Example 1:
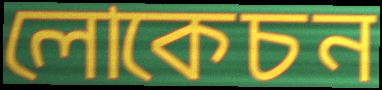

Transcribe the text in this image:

লোকেচন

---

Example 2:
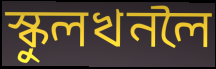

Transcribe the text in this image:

স্কুলখনলৈ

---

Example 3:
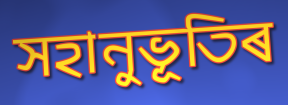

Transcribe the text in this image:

সহানুভূতিৰ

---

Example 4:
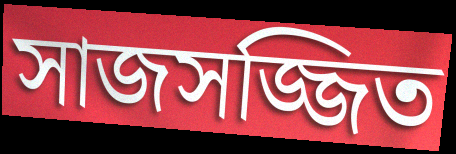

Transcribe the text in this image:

সাজসজ্জিত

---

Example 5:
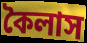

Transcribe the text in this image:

কৈলাস